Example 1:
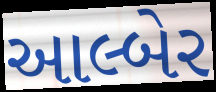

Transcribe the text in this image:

આલ્બેર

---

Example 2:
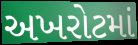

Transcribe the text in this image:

અખરોટમાં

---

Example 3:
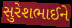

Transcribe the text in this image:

સુરેશભાઈને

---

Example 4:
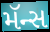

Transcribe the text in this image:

મૅન્સ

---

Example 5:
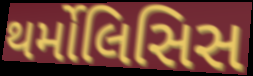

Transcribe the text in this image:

થર્મોલિસિસ